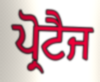
ਪ੍ਰੋਟੈਜ